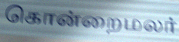
கொன்றைமலர்